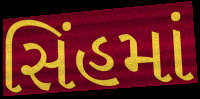
સિંહમાં